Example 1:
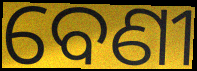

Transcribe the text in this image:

ବେଣୀ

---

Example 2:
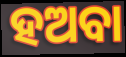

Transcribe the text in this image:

ହଅବା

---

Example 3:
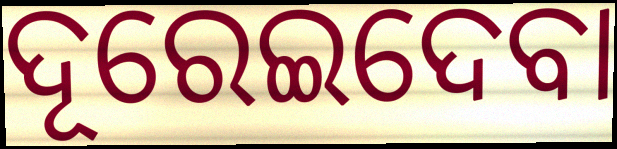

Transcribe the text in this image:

ଦୂରେଇଦେବା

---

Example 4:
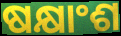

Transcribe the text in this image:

ଷକ୍ଷାଂଶ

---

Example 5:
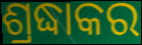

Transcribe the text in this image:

ଶ୍ରଦ୍ଧାକର